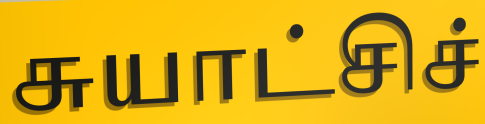
சுயாட்சிச்